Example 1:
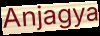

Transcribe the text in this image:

Anjagya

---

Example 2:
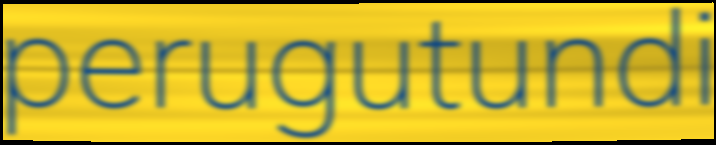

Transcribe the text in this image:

perugutundi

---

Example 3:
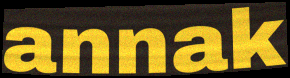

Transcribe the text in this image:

annak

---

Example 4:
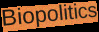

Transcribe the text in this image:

Biopolitics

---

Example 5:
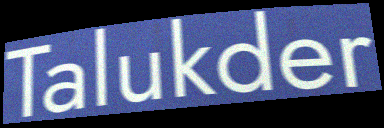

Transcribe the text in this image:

Talukder